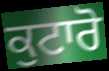
ਕੁਟਾਰੋ